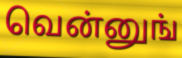
வென்னுங்